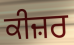
ਕੀਜ਼ਰ